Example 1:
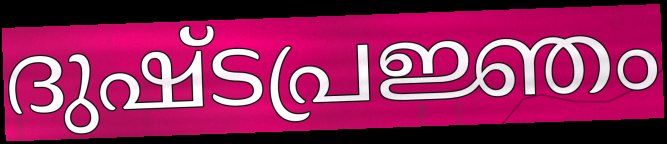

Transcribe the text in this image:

ദുഷ്ടപ്രജ്ഞം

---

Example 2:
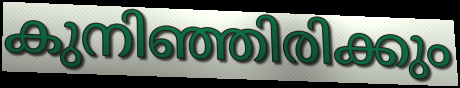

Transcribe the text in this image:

കുനിഞ്ഞിരിക്കും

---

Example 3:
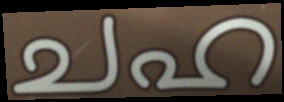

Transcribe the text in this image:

ചഹ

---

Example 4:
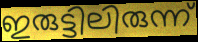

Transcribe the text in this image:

ഇരുട്ടിലിരുന്ന്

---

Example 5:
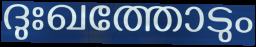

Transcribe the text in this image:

ദുഃഖത്തോടും